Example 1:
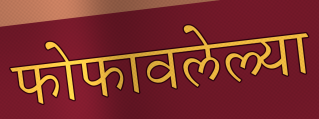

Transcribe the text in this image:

फोफावलेल्या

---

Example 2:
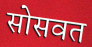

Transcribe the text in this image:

सोसवत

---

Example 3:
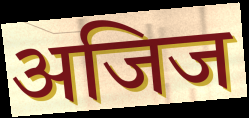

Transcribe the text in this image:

अजिज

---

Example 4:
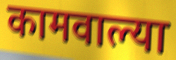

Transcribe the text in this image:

कामवाल्या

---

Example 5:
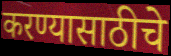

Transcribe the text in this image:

करण्यासाठीचे